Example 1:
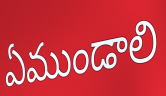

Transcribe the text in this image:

ఏముండాలి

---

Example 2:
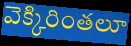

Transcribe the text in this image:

వెక్కిరింతలూ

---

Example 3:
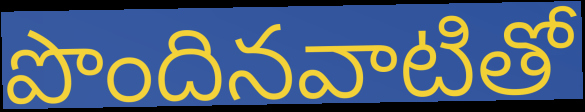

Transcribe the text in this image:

పొందినవాటితో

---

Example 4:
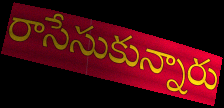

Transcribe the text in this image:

రాసేసుకున్నారు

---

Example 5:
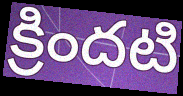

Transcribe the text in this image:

క్రిందటి